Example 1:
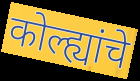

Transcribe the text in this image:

कोल्ह्यांचे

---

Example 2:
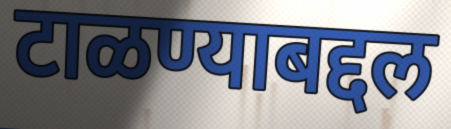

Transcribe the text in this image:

टाळण्याबद्दल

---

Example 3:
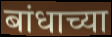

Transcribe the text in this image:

बांधाच्या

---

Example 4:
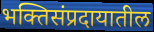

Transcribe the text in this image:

भक्तिसंप्रदायातील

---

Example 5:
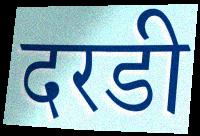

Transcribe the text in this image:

दरडी